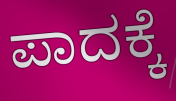
ಪಾದಕ್ಕೆ